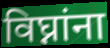
विघ्नांना